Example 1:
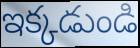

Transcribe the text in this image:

ఇక్కడుండి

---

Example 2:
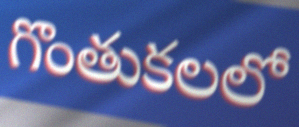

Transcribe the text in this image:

గొంతుకలలో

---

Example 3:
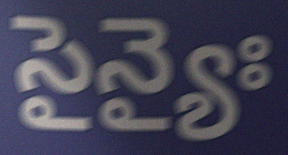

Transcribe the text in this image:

సైన్యైః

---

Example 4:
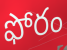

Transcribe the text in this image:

ఫోరం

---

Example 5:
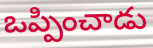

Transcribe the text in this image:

ఒప్పించాడు